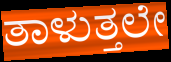
ತಾಳುತ್ತಲೇ